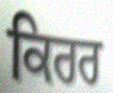
ਕਿਰਰ